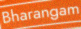
Bharangam